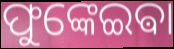
ଫୁଙ୍କେଇଵା